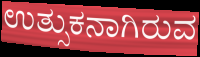
ಉತ್ಸುಕನಾಗಿರುವ